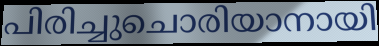
പിരിച്ചുചൊരിയാനായി